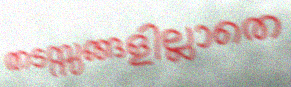
തടസ്സങ്ങളില്ലാതെ